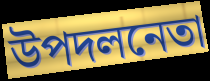
উপদলনেতা